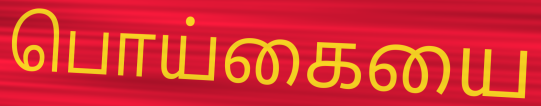
பொய்கையை